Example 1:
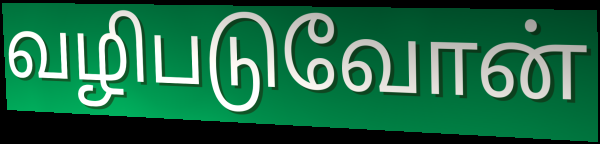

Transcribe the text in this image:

வழிபடுவோன்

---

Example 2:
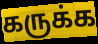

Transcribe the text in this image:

கருக்க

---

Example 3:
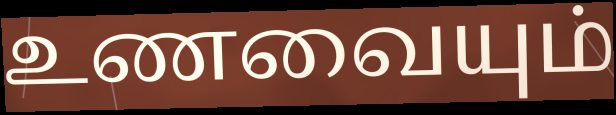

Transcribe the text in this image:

உணவையும்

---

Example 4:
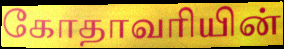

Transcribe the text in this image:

கோதாவரியின்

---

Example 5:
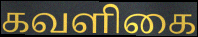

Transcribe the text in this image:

கவளிகை